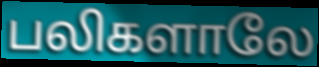
பலிகளாலே